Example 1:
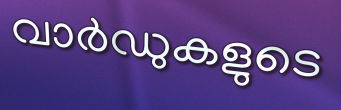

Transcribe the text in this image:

വാർഡുകളുടെ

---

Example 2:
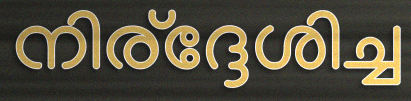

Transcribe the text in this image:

നിര്ദ്ദേശിച്ച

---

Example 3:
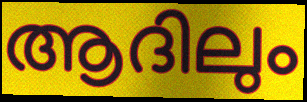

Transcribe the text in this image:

ആദിലും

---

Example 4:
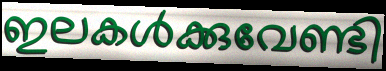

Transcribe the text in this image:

ഇലകൾക്കുവേണ്ടി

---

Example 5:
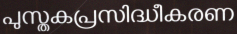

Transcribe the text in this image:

പുസ്തകപ്രസിദ്ധീകരണ